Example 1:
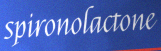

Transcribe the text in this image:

spironolactone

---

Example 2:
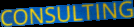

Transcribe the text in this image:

CONSULTING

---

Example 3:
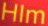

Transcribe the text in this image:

HIm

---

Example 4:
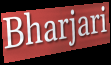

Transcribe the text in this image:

Bharjari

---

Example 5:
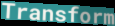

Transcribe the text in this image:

Transform